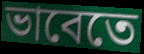
ভাবেতে